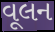
વૂલન